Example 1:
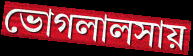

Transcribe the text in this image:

ভোগলালসায়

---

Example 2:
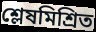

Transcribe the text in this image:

শ্লেষমিশ্রিত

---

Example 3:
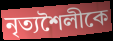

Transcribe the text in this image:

নৃত্যশৈলীকে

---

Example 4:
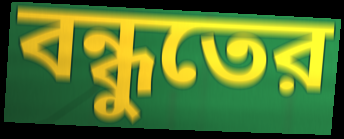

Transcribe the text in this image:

বন্ধুতের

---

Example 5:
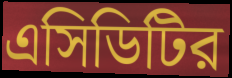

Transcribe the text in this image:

এসিডিটির